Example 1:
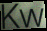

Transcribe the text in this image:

Kw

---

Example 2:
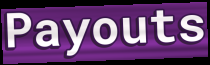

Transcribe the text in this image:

Payouts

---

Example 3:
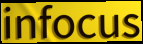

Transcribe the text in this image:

infocus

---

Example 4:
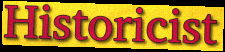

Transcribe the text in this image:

Historicist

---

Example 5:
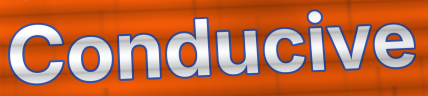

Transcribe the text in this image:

Conducive